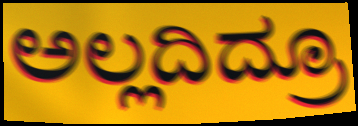
ಅಲ್ಲದಿದ್ರೂ